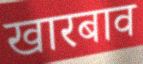
खारबाव